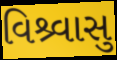
વિશ્ર્વાસુ